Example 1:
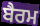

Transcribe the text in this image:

ਬੈਰਮ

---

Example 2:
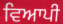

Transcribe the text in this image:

ਵਿਆਪੀ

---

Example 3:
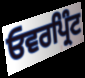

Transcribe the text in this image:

ਓਵਰਪ੍ਰਿੰਟ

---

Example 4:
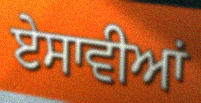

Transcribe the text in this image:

ਏਸਾਵੀਆਂ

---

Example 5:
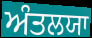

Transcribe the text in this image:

ਅੰਤਲਯਾ